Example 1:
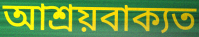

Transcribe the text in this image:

আশ্ৰয়বাক্যত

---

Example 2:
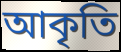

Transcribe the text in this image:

আকৃতি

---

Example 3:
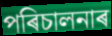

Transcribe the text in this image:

পৰিচালনাৰ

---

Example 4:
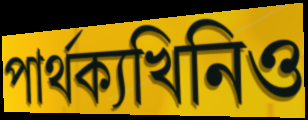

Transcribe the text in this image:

পাৰ্থক্যখিনিও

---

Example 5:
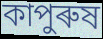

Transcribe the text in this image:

কাপুৰুষ